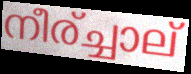
നീര്ച്ചാല്